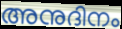
അനുദിനം